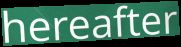
hereafter